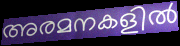
അരമനകളിൽ